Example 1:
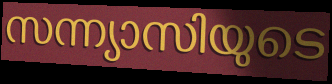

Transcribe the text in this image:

സന്ന്യാസിയുടെ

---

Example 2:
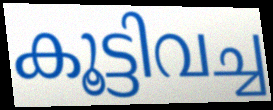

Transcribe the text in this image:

കൂട്ടിവച്ച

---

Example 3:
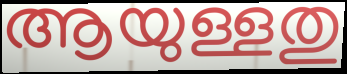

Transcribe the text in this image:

ആയുള്ളതു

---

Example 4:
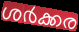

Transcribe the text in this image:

ശർക്കര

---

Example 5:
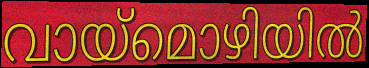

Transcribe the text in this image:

വായ്മൊഴിയിൽ